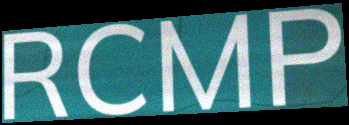
RCMP